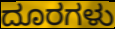
ದೂರಗಳು